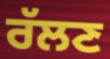
ਰੱਲਣ